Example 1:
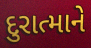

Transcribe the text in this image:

દુરાત્માને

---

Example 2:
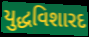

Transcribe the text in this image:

યુદ્ધવિશારદ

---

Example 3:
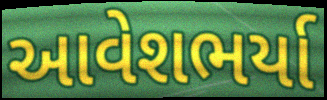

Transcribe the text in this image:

આવેશભર્યા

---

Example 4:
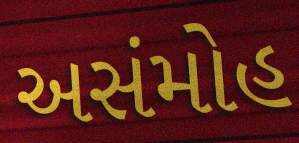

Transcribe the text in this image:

અસંમોહ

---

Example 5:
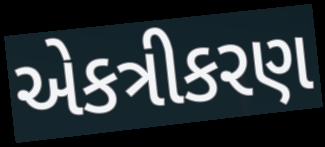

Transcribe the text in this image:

એકત્રીકરણ